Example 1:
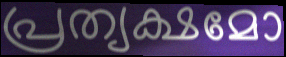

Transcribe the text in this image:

പ്രത്യക്ഷമോ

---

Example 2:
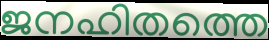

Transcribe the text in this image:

ജനഹിതത്തെ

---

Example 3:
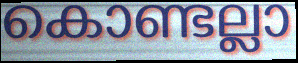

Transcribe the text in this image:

കൊണ്ടല്ലാ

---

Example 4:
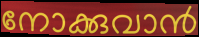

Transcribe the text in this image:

നോക്കുവാൻ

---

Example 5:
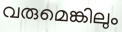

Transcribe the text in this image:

വരുമെങ്കിലും